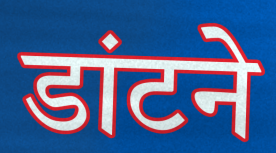
डांटने